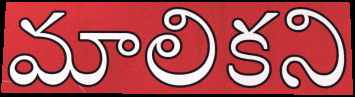
మాలికని